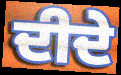
ਦੀਦੇ